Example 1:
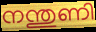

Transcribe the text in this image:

നന്തുണി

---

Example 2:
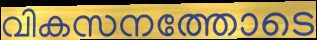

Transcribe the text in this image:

വികസനത്തോടെ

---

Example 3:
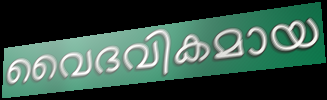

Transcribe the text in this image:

വൈദവികമായ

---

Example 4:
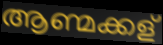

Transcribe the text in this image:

ആണ്മക്കള്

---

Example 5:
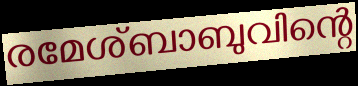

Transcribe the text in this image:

രമേശ്ബാബുവിന്റെ